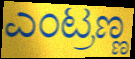
ಎಂಟ್ರಣ್ಣ